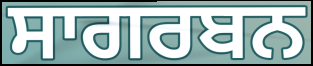
ਸਾਗਰਬਨ